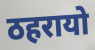
ठहरायो